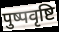
पुष्पवृष्टि